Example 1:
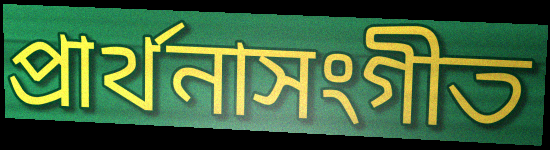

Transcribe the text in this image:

প্রার্থনাসংগীত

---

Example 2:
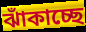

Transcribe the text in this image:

ঝাঁকাচ্ছে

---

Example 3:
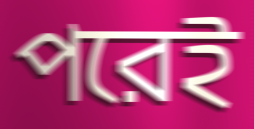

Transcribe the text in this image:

পরেই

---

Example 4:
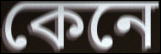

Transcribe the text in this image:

কেনে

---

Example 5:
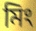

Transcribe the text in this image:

মিং